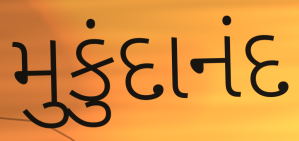
મુકુંદાનંદ